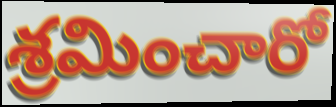
శ్రమించారో